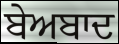
ਬੇਅਬਾਦ